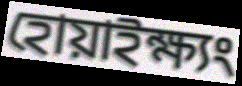
হোয়াইক্ষ্যং